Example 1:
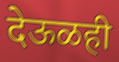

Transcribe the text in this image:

देऊळही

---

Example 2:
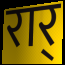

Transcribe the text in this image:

रार्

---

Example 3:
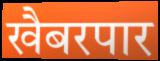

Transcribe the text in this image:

खैबरपार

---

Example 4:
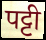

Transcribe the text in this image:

पट्टी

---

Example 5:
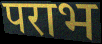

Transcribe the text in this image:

पराभ